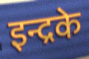
इन्द्रके